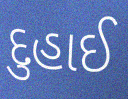
દુહાઈ